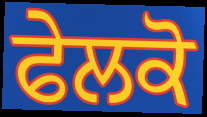
ਫੇਲਕੋ